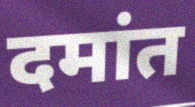
दमांत